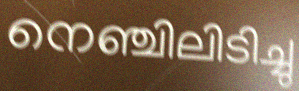
നെഞ്ചിലിടിച്ചു